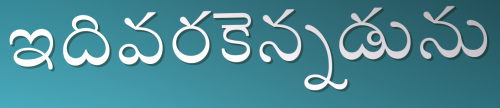
ఇదివరకెన్నడును